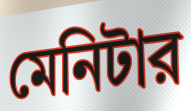
মেনিটার